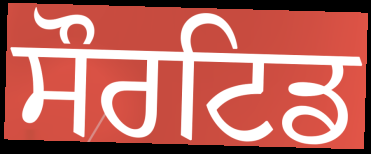
ਸੌਰਟਿਡ